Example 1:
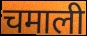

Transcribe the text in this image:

चमाली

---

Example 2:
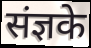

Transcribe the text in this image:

संज्ञके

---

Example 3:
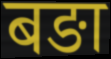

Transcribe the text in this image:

बङा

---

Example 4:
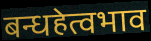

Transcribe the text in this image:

बन्धहेत्वभाव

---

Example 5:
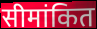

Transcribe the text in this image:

सीमांकित